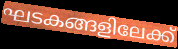
ഘടകങ്ങളിലേക്ക്